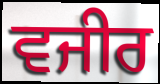
ਵਜੀਰ